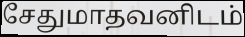
சேதுமாதவனிடம்